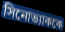
সিনোভ্যাককে